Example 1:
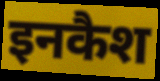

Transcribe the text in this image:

इनकैश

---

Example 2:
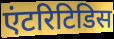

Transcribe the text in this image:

एंटरिटिडिस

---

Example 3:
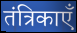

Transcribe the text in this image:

तंत्रिकाएँ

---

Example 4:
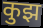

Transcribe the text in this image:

कुझ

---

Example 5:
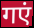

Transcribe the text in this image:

गएं